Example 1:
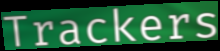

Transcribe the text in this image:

Trackers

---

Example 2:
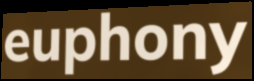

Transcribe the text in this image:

euphony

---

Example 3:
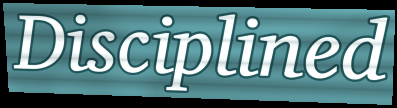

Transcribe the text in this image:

Disciplined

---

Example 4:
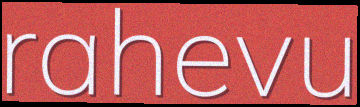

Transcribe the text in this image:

rahevu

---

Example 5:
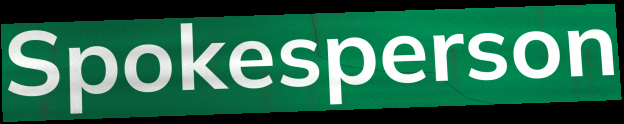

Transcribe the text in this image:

Spokesperson